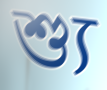
শ্যু